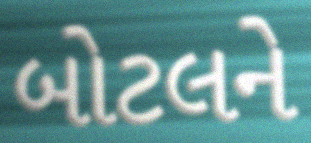
બોટલને